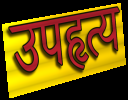
उपहृत्य